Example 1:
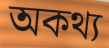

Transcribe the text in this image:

অকথ্য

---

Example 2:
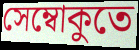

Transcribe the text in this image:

সেম্বোকুতে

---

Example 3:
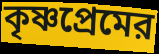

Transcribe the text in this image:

কৃষ্ণপ্রেমের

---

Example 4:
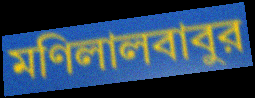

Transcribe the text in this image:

মণিলালবাবুর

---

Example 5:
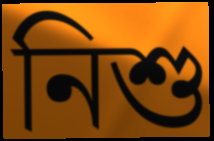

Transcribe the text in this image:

নিশু